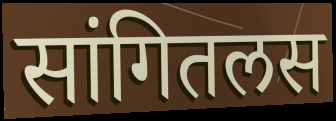
सांगितलस